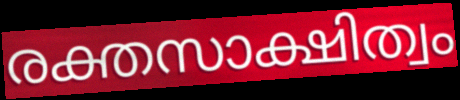
രക്തസാക്ഷിത്വം